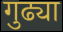
गुढ्या